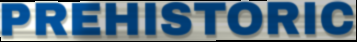
PREHISTORIC